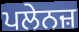
ਪਲੇਨਜ਼